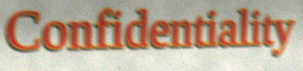
Confidentiality